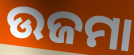
ଉଜମା